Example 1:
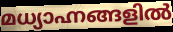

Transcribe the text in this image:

മധ്യാഹ്നങ്ങളിൽ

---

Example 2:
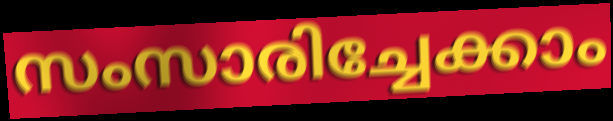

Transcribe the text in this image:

സംസാരിച്ചേക്കാം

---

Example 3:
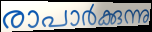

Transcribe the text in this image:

രാപാർക്കുന്നു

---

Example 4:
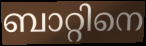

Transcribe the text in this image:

ബാറ്റിനെ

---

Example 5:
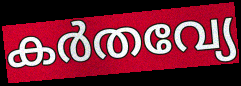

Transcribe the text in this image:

കർതവ്യേ